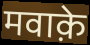
मवाक़े